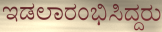
ಇಡಲಾರಂಭಿಸಿದ್ದರು